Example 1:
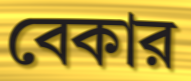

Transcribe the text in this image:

বেকার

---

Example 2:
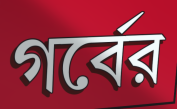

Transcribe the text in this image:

গর্বের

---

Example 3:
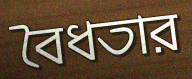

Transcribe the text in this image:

বৈধতার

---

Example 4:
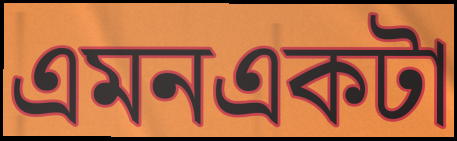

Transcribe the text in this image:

এমনএকটা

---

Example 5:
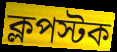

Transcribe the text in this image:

ক্লপস্টক